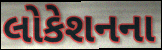
લોકેશનના